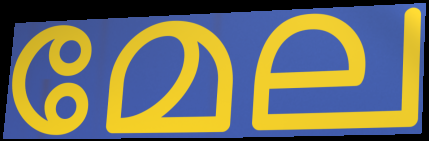
മേല